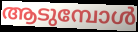
ആടുമ്പോൾ